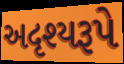
અદૃશ્યરૂપે